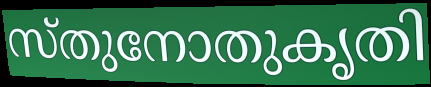
സ്തുനോതുകൃതി